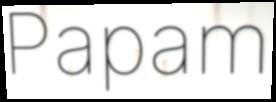
Papam